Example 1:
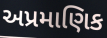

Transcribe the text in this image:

અપ્રમાણિક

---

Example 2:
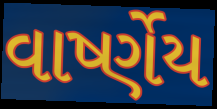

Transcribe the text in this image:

વાર્ષ્ણેય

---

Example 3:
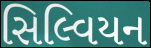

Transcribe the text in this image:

સિલ્વિયન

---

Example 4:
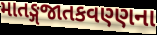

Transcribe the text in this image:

માતઙ્ગજાતકવણ્ણના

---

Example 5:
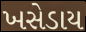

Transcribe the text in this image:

ખસેડાય